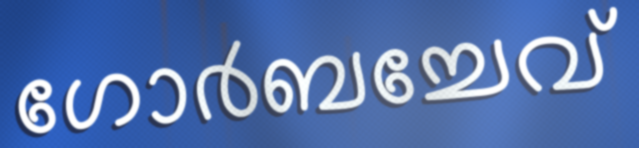
ഗോർബച്ചേവ്